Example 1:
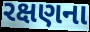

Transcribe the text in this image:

રક્ષણના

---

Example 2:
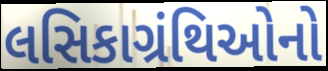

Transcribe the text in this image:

લસિકાગ્રંથિઓનો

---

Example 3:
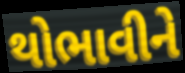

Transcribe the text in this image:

થોભાવીને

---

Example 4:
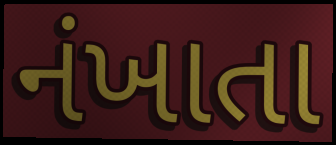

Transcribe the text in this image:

નંખાતા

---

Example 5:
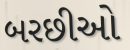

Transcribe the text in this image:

બરછીઓ